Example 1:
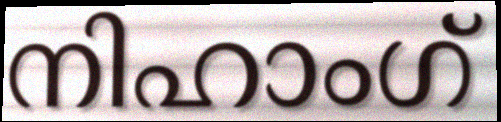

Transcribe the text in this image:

നിഹാംഗ്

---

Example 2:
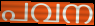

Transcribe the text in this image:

പവന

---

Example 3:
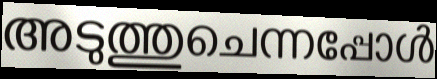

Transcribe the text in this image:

അടുത്തുചെന്നപ്പോൾ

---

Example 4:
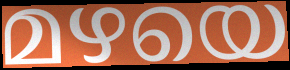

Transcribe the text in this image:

മഴയെ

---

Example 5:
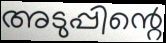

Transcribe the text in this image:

അടുപ്പിന്റെ